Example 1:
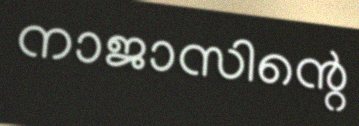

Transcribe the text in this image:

നാജാസിന്റെ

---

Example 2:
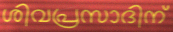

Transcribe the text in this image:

ശിവപ്രസാദിന്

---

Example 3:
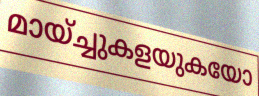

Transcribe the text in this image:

മായ്ച്ചുകളയുകയോ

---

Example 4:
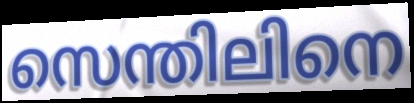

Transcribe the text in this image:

സെന്തിലിനെ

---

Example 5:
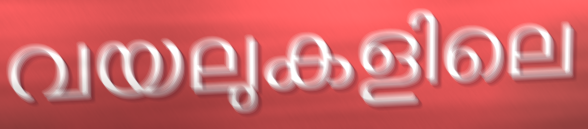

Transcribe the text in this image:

വയലുകളിലെ